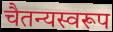
चैतन्यस्वरूप